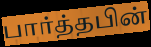
பார்த்தபின்